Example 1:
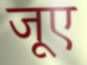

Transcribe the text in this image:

जूए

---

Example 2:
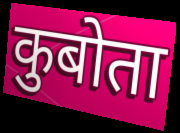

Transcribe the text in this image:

कुबोता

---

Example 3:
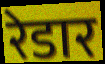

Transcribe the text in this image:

रेडार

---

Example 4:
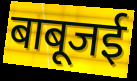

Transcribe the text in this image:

बाबूजई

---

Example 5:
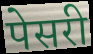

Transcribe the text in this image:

पेसरी